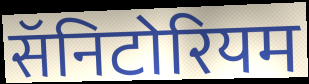
सॅनिटोरियम